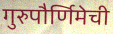
गुरुपौर्णिमेची